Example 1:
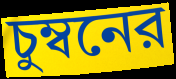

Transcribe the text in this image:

চুম্বনের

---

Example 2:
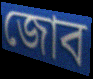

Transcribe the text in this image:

জোব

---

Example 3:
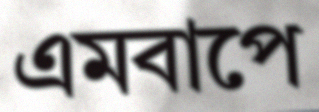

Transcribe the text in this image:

এমবাপে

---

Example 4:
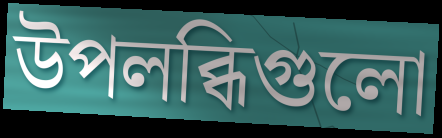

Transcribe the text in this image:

উপলব্ধিগুলো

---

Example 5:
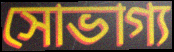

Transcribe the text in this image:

সোভাগ্য